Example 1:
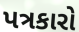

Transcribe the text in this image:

પત્રકારો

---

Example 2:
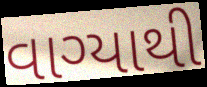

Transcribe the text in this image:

વાગ્યાથી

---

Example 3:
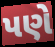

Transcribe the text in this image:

પણે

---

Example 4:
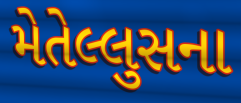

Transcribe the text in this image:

મેતેલ્લુસના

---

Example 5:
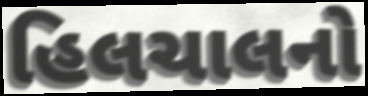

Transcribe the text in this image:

હિલચાલનો